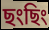
ছংছিং